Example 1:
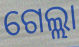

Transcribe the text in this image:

ଗେଲ୍ଲା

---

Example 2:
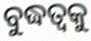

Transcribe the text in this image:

ବୁଦ୍ଧତ୍ଵକୁ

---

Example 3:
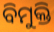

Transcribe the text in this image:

ବିମୁକ୍ତି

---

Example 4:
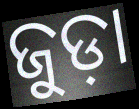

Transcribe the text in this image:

ଜୁଡ଼ା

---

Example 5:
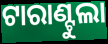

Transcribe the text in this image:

ଟାରାଣ୍ଟୁଲା